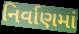
નિર્વાણમાં